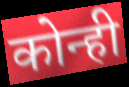
कोन्ही